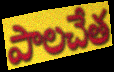
పాలచేత